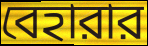
বেহারার